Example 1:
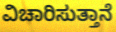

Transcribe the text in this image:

ವಿಚಾರಿಸುತ್ತಾನೆ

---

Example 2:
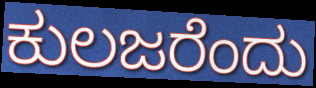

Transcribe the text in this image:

ಕುಲಜರೆಂದು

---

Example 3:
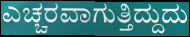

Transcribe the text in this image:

ಎಚ್ಚರವಾಗುತ್ತಿದ್ದುದು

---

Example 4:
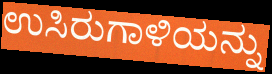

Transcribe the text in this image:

ಉಸಿರುಗಾಳಿಯನ್ನು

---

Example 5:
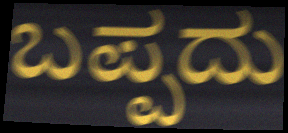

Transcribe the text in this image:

ಬಪ್ಪದು